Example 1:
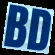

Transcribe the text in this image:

BD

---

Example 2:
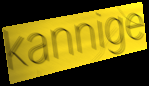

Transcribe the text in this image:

kannige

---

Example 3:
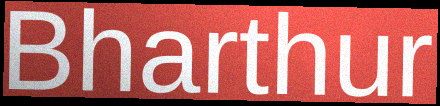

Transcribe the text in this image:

Bharthur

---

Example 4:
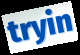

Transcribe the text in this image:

tryin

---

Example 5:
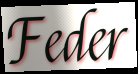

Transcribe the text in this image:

Feder